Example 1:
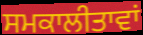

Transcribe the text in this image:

ਸਮਕਾਲੀਤਾਵਾਂ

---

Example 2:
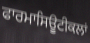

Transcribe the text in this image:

ਫਾਰਮਾਸਿਊਟੀਕਲਾਂ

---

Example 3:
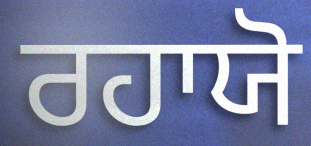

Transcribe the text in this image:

ਰਹਾਯੋ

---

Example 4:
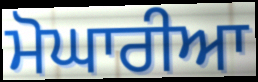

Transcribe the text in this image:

ਮੋਘਾਰੀਆ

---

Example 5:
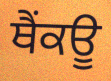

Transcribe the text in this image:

ਥੈਂਕਊ